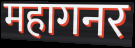
महागनर